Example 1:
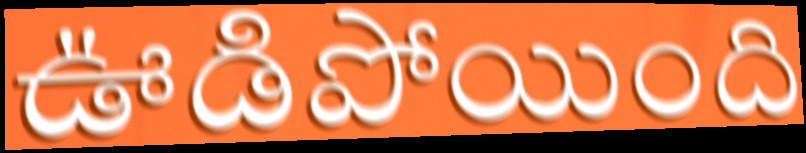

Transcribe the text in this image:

ఊడిపోయింది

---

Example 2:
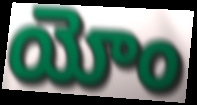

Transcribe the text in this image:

యోం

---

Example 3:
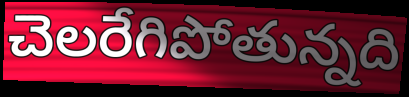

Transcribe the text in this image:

చెలరేగిపోతున్నది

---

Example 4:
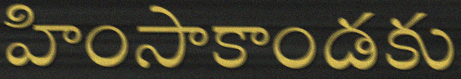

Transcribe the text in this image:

హింసాకాండకు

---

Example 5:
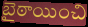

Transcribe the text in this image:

బైఠాయించి